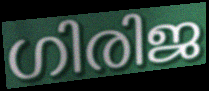
ഗിരിജ